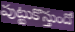
పుట్టుకొస్తుందో